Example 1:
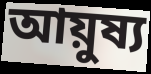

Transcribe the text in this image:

আয়ুষ্য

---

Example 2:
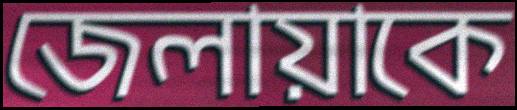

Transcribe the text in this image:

জেলায়াকে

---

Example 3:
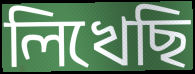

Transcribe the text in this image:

লিখেছি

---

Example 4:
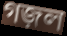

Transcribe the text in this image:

গজ়ল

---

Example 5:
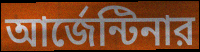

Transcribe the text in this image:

আর্জেন্টিনার